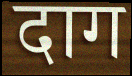
दाग